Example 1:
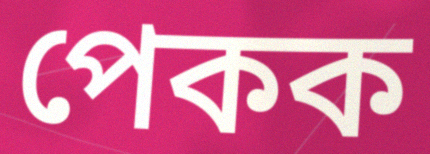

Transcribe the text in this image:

পেকক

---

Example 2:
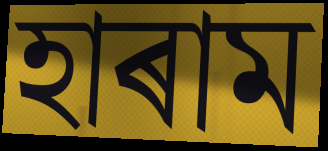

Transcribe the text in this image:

হাৰাম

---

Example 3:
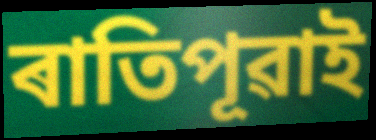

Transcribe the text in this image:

ৰাতিপূৱাই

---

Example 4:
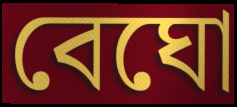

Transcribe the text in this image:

বেঘো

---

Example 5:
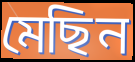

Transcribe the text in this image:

মেছিন